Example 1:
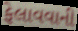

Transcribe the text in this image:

ફેલાવવાની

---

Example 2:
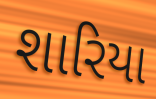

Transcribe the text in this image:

શારિયા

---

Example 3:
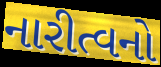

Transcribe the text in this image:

નારીત્વનો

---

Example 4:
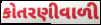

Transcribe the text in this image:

કોતરણીવાળી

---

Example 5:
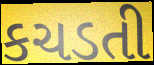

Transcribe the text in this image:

કચડતી